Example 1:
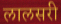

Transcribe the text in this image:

लालसरी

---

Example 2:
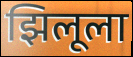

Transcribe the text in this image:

झिलूला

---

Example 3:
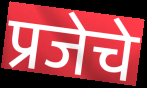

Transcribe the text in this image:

प्रजेचे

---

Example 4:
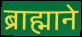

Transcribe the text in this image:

ब्राह्माने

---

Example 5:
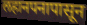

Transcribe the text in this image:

लहानपनापासून